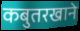
कबुतरखाने